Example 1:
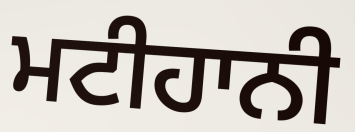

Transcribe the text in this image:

ਮਟੀਹਾਨੀ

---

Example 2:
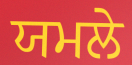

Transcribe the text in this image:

ਯਮਲੇ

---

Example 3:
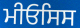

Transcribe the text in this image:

ਮੀਓਸਿਸ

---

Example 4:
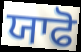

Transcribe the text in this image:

ਯਾਫੋ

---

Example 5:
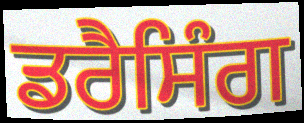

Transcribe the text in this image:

ਡਰੈਸਿੰਗ